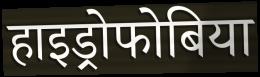
हाइड्रोफोबिया